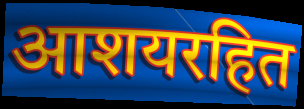
आशयरहित